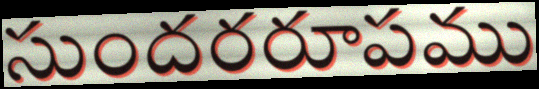
సుందరరూపము